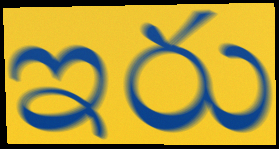
ఇరు